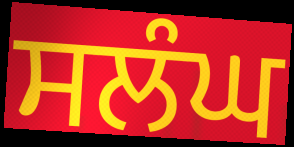
ਸਲੰਘ